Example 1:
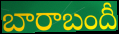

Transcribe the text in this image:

బారాబందీ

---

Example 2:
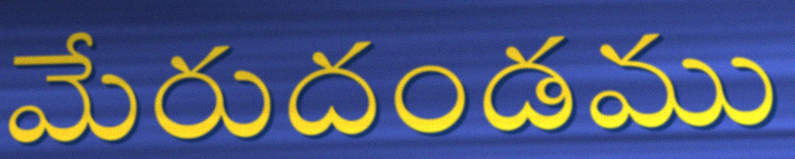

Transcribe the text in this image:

మేరుదండము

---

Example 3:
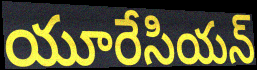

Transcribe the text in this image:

యూరేసియన్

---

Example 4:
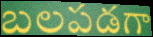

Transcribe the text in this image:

బలపడగా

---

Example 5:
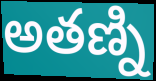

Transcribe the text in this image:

అతణ్ని